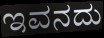
ಇವನದು